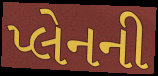
પ્લેનની